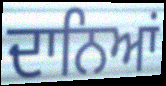
ਦਾਨਿਆਂ